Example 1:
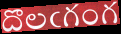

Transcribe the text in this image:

దొలఁగంగ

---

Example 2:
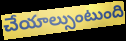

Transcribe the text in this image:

చేయాల్సుంటుంది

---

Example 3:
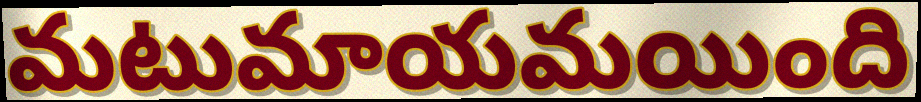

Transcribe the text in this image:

మటుమాయమయింది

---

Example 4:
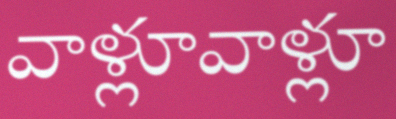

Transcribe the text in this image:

వాళ్లూవాళ్లూ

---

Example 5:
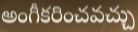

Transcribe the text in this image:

అంగీకరించవచ్చు